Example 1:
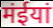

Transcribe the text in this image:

मंईयां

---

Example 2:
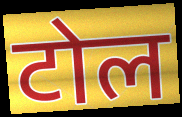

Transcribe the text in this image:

टोल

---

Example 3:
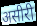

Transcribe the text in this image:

असीरी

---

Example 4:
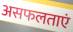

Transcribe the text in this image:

असफलताएं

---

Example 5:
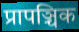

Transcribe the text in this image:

प्रापञ्चिक